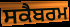
ਸਕੈਬਰਮ